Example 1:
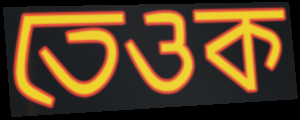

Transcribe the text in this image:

তেওক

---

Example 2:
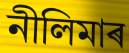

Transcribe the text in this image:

নীলিমাৰ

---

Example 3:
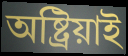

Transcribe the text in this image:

অষ্ট্ৰিয়াই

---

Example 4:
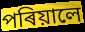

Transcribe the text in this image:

পৰিয়ালে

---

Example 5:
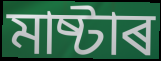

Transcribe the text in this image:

মাষ্টাৰ